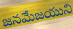
జనమేజయుని